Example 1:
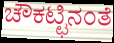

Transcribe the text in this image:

ಚೌಕಟ್ಟಿನಂತೆ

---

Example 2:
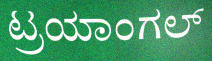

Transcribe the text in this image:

ಟ್ರಯಾಂಗಲ್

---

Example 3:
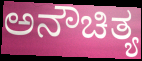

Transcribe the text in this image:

ಅನೌಚಿತ್ಯ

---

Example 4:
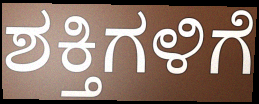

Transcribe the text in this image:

ಶಕ್ತಿಗಳಿಗೆ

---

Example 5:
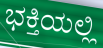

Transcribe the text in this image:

ಭಕ್ತಿಯಲ್ಲಿ